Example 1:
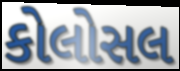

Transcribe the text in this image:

કોલોસલ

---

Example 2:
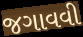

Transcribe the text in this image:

જગાવવી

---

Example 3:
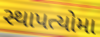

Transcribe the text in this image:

સ્થાપત્યોમા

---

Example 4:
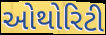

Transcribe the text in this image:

ઓથોરિટી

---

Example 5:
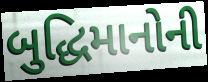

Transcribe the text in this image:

બુદ્ધિમાનોની